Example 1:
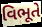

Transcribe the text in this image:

વિભૂતે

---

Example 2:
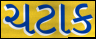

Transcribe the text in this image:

ચટાક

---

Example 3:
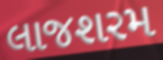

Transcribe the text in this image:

લાજશરમ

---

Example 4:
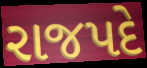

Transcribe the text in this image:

રાજપદે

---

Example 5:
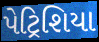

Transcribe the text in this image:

પેટ્રિશિયા